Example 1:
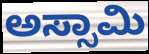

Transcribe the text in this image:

ಅಸ್ಸಾಮಿ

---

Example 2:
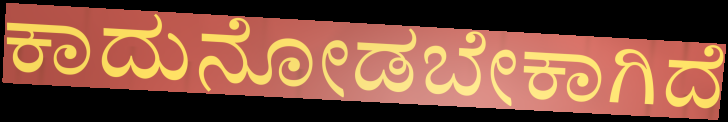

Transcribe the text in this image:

ಕಾದುನೋಡಬೇಕಾಗಿದೆ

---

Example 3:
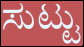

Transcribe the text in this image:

ಸುಟ್ಟು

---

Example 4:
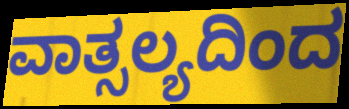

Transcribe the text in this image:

ವಾತ್ಸಲ್ಯದಿಂದ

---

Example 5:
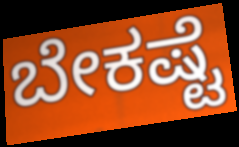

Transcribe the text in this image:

ಬೇಕಷ್ಟೆ